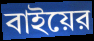
বাইয়ের